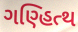
ગણ્હિત્થ